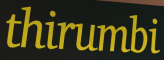
thirumbi